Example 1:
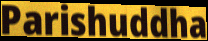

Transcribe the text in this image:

Parishuddha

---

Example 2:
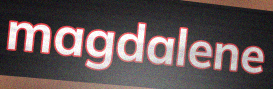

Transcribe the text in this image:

magdalene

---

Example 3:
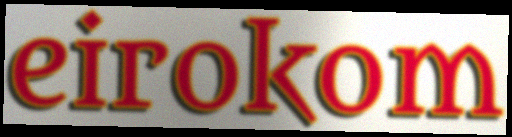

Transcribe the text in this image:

eirokom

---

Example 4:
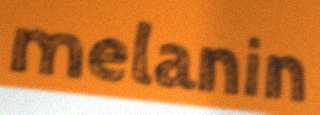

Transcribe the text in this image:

melanin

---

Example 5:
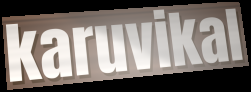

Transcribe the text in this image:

karuvikal